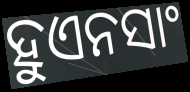
ହୁଏନସାଂ